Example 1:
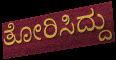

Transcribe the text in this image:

ತೋರಿಸಿದ್ದು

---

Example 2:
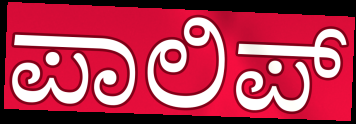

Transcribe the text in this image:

ಪಾಲಿಪ್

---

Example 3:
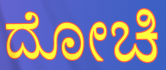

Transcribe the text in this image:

ದೋಚಿ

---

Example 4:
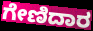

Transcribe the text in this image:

ಗೇಣಿದಾರ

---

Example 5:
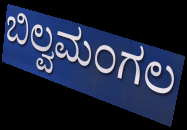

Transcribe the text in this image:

ಬಿಲ್ವಮಂಗಲ